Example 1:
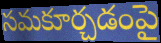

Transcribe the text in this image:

సమకూర్చడంపై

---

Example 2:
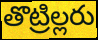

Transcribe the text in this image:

తొట్రిల్లరు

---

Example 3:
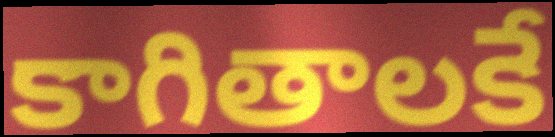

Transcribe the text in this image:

కాగితాలకే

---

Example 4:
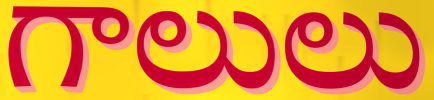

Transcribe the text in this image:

గాలులు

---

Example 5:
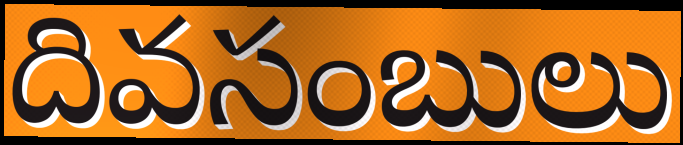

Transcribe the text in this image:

దివసంబులు